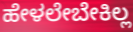
ಹೇಳಲೇಬೇಕಿಲ್ಲ